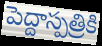
పెద్దాస్పత్రికి